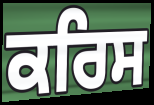
ਕਰਿਸ